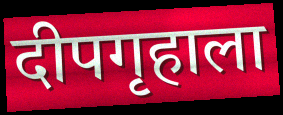
दीपगृहाला